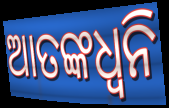
ଆତଙ୍କଧ୍ଵନି